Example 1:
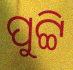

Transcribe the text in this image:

ପୁଟ୍ଟି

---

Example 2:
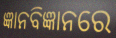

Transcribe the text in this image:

ଜ୍ଞାନବିଜ୍ଞାନରେ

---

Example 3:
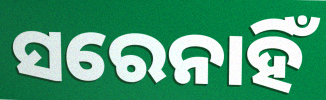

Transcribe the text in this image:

ସରେନାହିଁ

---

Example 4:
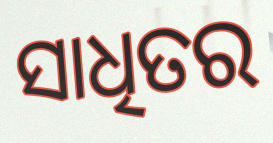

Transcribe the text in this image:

ସାଧିତର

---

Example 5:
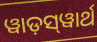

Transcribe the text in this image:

ୱାଡ଼ସ୍‌ୱାର୍ଥ